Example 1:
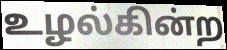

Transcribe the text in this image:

உழல்கின்ற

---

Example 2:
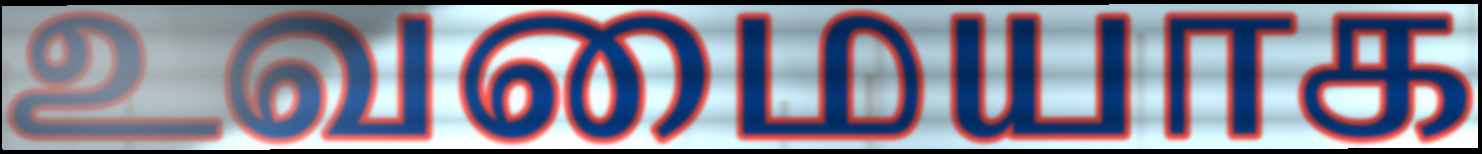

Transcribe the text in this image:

உவமையாக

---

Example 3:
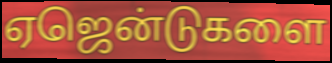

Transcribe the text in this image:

ஏஜென்டுகளை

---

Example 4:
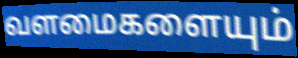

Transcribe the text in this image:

வளமைகளையும்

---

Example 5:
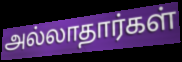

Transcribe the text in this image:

அல்லாதார்கள்